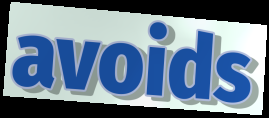
avoids